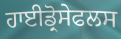
ਹਾਈਡ੍ਰੋਸੇਫਲਸ